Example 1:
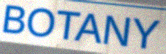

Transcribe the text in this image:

BOTANY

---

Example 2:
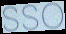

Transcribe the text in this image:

SSO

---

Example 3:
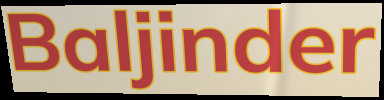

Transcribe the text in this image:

Baljinder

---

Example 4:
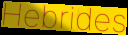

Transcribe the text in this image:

Hebrides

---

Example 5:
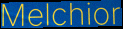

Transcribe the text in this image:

Melchior